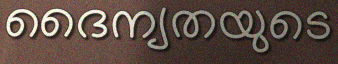
ദൈന്യതയുടെ